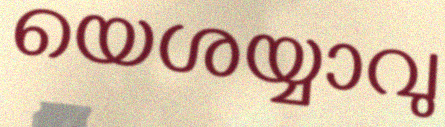
യെശയ്യാവു